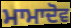
ਮਾਮਾਦੋਵ